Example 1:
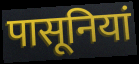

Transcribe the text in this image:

पासूनियां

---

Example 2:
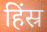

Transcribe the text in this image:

हिंस्र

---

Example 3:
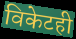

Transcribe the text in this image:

विकेटही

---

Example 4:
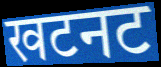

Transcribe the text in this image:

खटनट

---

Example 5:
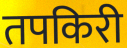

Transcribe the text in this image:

तपकिरी